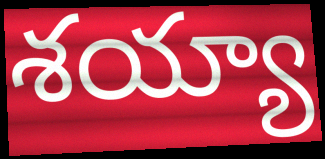
శయ్యా